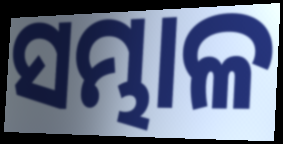
ସମ୍ଭାଳ